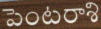
పెంటరాశి